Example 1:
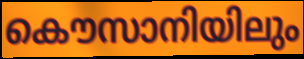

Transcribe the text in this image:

കൌസാനിയിലും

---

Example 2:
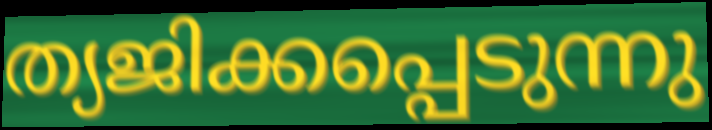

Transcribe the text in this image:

ത്യജിക്കപ്പെടുന്നു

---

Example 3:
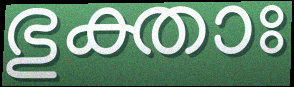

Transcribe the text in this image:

ഭുക്താഃ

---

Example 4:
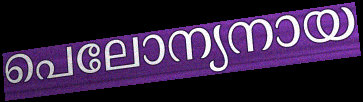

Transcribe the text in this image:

പെലോന്യനായ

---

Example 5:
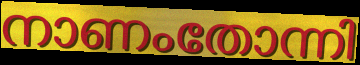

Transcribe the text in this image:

നാണംതോന്നി